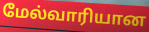
மேல்வாரியான